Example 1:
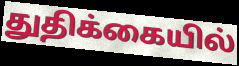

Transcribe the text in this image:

துதிக்கையில்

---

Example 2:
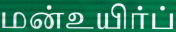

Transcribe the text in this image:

மன்உயிர்ப்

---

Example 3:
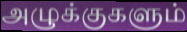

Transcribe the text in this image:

அழுக்குகளும்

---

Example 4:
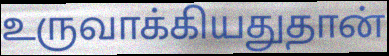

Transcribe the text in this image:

உருவாக்கியதுதான்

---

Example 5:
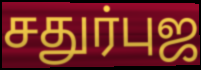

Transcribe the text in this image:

சதுர்புஜ